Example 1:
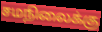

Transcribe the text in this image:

சமநிலைக்கு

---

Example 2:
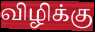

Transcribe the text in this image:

விழிக்கு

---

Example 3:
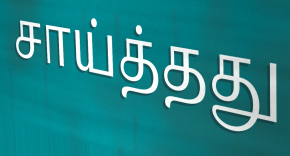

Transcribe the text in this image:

சாய்த்தது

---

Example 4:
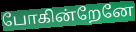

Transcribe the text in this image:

போகின்றேனே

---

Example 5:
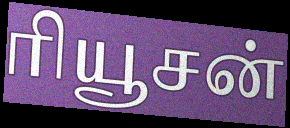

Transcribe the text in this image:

ரியூசன்